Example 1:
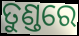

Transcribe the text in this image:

ତୁଣ୍ଡରେ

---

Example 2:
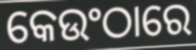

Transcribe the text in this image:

କେଉଂଠାରେ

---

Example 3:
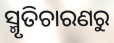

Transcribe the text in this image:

ସ୍ମୃତିଚାରଣରୁ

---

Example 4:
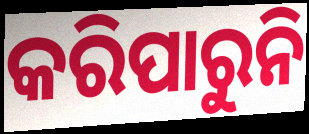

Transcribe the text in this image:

କରିପାରୁନି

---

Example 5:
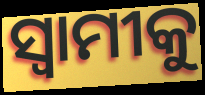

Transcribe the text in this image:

ସ୍ବାମୀକୁ